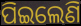
ପିଇଲେଣି